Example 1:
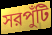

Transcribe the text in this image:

সরপুঁটি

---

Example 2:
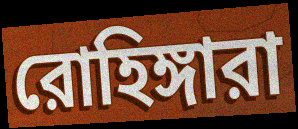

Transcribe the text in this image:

রোহিঙ্গারা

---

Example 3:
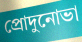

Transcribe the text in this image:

প্রোদুনোভা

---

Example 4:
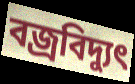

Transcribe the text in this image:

বজ্রবিদ্যুৎ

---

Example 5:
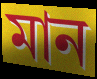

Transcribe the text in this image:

মান